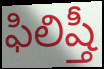
ఫిలిష్తీ